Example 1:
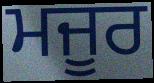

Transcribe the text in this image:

ਮਜੂਰ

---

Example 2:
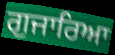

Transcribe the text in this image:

ਗੁਜਾਰਿਆ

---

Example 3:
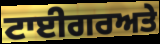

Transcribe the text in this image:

ਟਾਈਗਰਅਤੇ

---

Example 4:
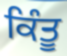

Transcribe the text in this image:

ਕਿੰਤੂ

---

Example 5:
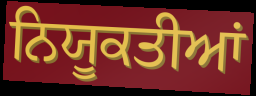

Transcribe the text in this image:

ਨਿਯੂਕਤੀਆਂ